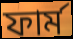
ফাৰ্ম